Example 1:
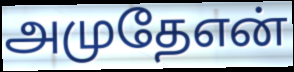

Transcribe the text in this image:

அமுதேஎன்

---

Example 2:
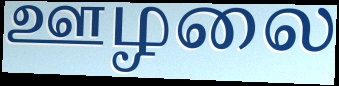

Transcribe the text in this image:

ஊழலை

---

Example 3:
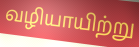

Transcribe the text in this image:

வழியாயிற்று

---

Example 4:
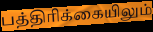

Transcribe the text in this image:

பத்திரிக்கையிலும்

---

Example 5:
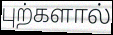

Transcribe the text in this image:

புற்களால்